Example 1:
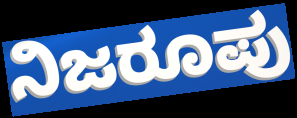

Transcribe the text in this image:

ನಿಜರೂಪು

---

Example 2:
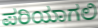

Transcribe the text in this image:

ಪರಿಯಾಗಲಿ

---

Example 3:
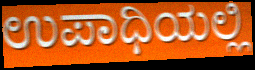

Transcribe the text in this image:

ಉಪಾಧಿಯಲ್ಲಿ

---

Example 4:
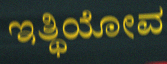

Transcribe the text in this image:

ಇತ್ಥಿಯೋವ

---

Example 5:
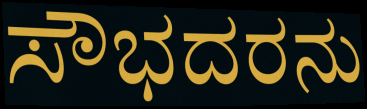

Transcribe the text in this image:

ಸೌಭದರನು